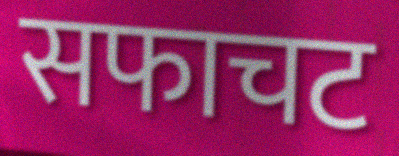
सफाचट